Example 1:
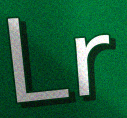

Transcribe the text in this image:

Lr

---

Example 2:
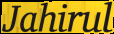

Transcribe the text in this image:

Jahirul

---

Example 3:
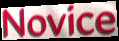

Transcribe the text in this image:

Novice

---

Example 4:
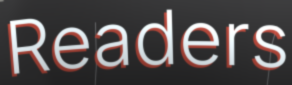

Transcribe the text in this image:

Readers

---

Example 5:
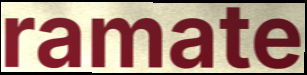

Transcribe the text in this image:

ramate